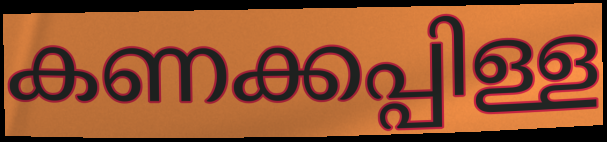
കണക്കപ്പിള്ള